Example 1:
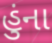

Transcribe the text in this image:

હુંના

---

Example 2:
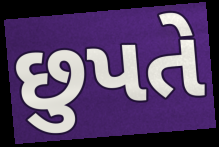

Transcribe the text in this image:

છુપતે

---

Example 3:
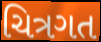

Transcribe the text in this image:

ચિત્રગત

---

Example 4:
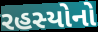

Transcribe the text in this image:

રહસ્યોનો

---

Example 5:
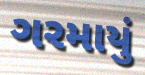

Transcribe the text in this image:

ગરમાયું